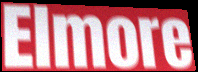
Elmore